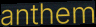
anthem